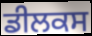
ਡੀਲਕਸ